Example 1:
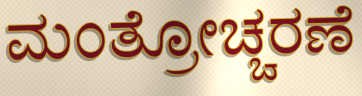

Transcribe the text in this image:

ಮಂತ್ರೋಚ್ಚರಣೆ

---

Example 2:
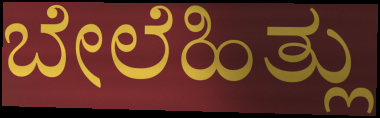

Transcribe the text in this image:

ಬೇಲೆಹಿತ್ಲು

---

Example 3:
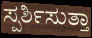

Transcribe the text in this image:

ಸ್ಪರ್ಶಿಸುತ್ತಾ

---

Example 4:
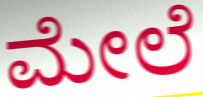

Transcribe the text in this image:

ಮೇಲೆ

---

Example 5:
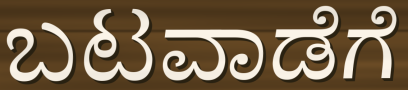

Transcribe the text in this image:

ಬಟವಾಡೆಗೆ